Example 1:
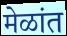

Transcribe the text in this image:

मेळांत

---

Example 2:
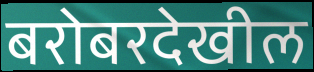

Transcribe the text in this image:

बरोबरदेखील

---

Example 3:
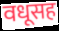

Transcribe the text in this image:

वधूसह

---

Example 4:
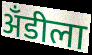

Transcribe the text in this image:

अँडीला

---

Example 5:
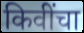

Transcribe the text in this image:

किवींचा